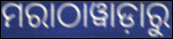
ମରାଠାୱାଡ଼ାରୁ